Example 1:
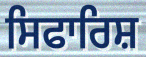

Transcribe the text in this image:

ਸਿਫਾਰਿਸ਼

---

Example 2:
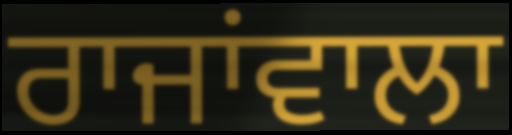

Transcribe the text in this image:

ਰਾਜਾਂਵਾਲਾ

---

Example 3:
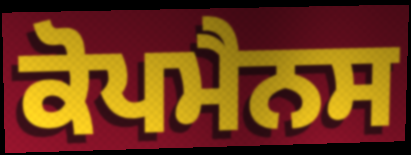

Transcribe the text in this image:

ਕੋਪਮੈਨਸ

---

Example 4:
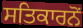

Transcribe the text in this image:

ਸਤਿਕਾਰਨੋਂ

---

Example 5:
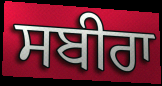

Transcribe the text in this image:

ਸਬੀਰਾ